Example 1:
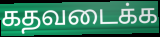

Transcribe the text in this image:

கதவடைக்க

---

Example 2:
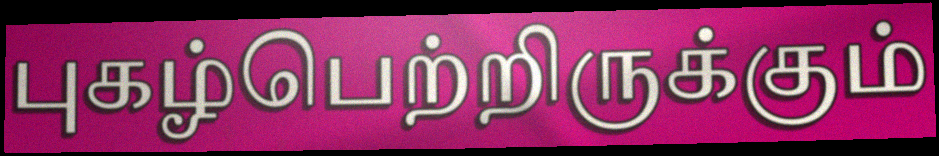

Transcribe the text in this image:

புகழ்பெற்றிருக்கும்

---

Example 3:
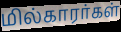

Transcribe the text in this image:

மில்காரர்கள்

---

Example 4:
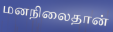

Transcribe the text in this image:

மனநிலைதான்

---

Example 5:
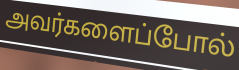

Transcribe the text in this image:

அவர்களைப்போல்